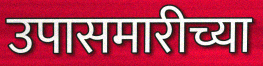
उपासमारीच्या